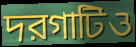
দরগাটিও